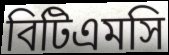
বিটিএমসি